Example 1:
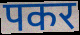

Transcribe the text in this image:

पकर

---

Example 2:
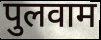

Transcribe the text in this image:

पुलवाम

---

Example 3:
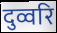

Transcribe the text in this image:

दुव्वरि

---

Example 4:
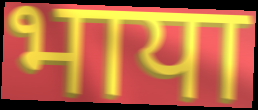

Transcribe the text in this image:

भाया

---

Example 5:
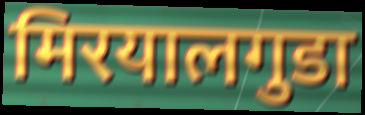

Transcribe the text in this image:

मिरयालगुडा